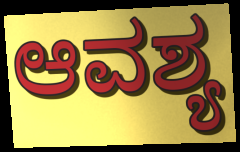
ಆವಶ್ಯ